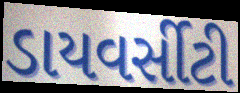
ડાયવર્સીટી